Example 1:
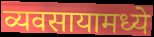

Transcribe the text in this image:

व्यवसायामध्ये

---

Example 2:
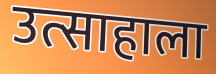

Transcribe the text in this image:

उत्साहाला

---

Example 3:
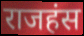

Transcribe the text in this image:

राजहंस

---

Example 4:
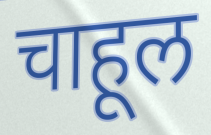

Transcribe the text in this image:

चाहूल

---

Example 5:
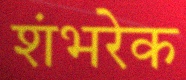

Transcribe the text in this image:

शंभरेक